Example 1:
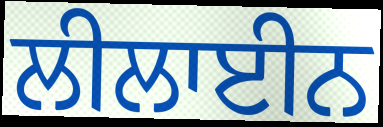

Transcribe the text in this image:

ਲੀਲਾਈਨ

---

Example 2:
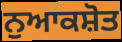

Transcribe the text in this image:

ਨੁਆਕਸ਼ੋਤ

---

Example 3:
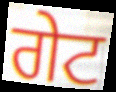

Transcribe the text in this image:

ਗੇਟ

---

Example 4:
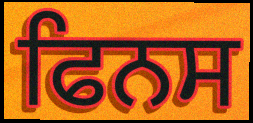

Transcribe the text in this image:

ਫਿਨਸ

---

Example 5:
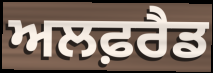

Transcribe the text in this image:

ਅਲਫ਼ਰੈਡ